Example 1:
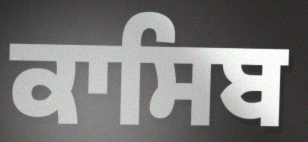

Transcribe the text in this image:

ਕਾਸਿਬ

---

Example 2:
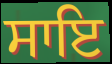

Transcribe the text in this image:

ਸਾਇ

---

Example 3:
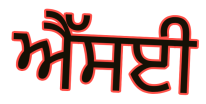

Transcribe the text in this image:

ਐੱਸਈ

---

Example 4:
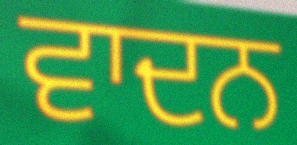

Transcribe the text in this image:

ਵਾਦਨ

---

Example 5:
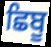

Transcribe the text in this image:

ਛਿਬੂ